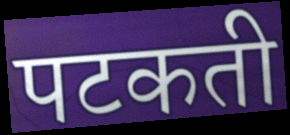
पटकती